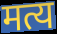
मत्य